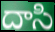
దాసి